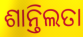
ଶାନ୍ତିଲତା